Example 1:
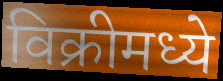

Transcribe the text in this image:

विक्रीमध्ये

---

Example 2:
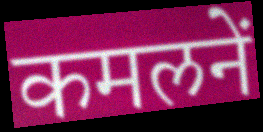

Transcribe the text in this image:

कमलनें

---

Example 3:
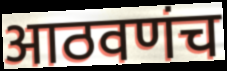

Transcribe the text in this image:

आठवणंच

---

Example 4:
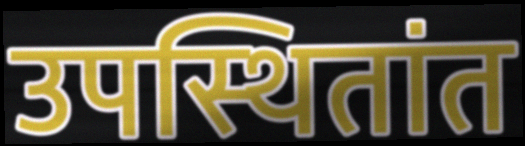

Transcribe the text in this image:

उपस्थितांत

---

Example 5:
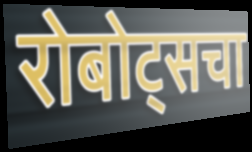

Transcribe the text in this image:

रोबोट्सचा